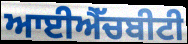
ਆਈਐੱਚਬੀਟੀ